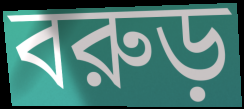
বরুড়